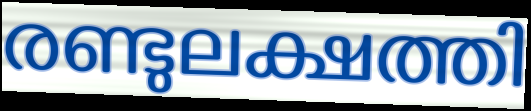
രണ്ടുലക്ഷത്തി